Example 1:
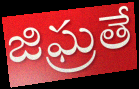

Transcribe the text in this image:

జిఘ్రతే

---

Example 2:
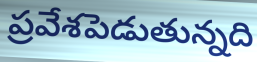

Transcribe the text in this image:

ప్రవేశపెడుతున్నది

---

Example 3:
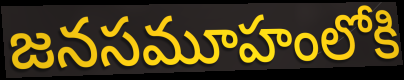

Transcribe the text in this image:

జనసమూహంలోకి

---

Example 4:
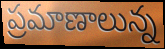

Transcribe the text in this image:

ప్రమాణాలున్న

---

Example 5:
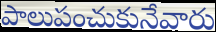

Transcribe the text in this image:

పాలుపంచుకునేవారు